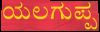
ಯಲಗುಪ್ಪ